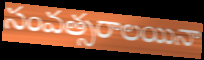
సంవత్సరాలయినా